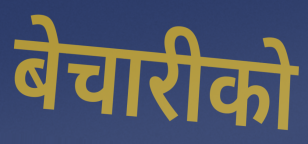
बेचारीको